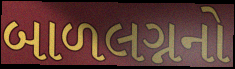
બાળલગ્નનો